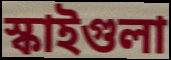
স্কাইগুলা